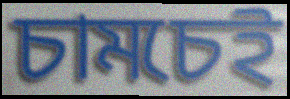
চামচেই